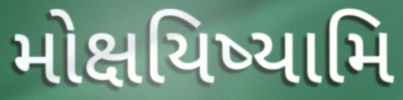
મોક્ષયિષ્યામિ